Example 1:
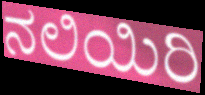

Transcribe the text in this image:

ನಲಿಯಿರಿ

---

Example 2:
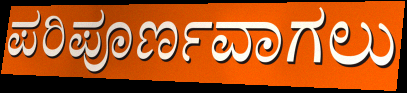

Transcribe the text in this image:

ಪರಿಪೂರ್ಣವಾಗಲು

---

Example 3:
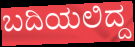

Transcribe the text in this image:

ಬದಿಯಲಿದ್ದ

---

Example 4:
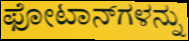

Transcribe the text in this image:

ಫೋಟಾನ್‌ಗಳನ್ನು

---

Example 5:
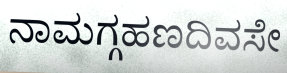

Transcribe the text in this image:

ನಾಮಗ್ಗಹಣದಿವಸೇ